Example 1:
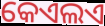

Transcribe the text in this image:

କେଏଲଏ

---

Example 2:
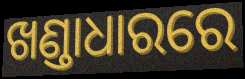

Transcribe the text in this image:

ଖଣ୍ଡାଧାରରେ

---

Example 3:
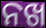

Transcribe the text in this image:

ନଖ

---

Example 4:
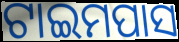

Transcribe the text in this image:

ଟାଇମପାସ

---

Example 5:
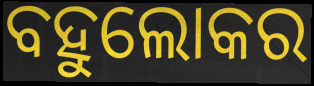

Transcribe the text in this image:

ବହୁଲୋକର